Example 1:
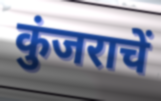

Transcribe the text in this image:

कुंजराचें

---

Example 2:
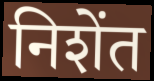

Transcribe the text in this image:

निशेंत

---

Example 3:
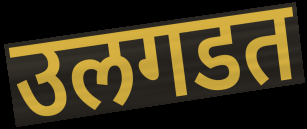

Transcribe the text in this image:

उलगडत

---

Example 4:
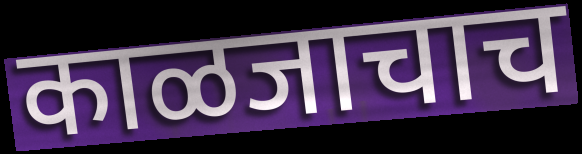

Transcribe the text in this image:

काळजाचाच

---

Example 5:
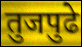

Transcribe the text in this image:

तुजपुढे